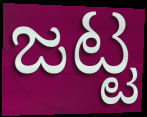
ಜಟ್ಟ